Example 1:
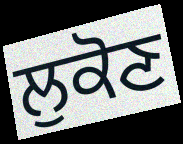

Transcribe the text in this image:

ਲੁਕੋਣ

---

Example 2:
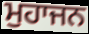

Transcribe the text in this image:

ਮੁਹਾਜਨ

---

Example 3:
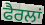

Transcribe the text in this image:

ਫੈਰਲਾਂ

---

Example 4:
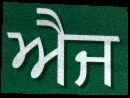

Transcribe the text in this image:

ਐਜ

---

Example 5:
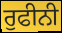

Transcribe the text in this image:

ਰੁਫੀਨੀ